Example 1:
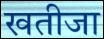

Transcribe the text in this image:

खतीजा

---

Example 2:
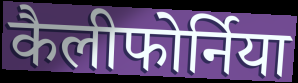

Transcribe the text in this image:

कैलीफोर्निया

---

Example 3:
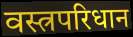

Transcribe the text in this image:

वस्त्रपरिधान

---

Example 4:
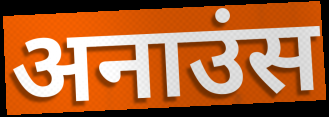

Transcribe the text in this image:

अनाउंस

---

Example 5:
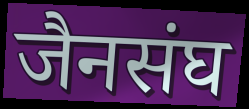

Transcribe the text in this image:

जैनसंघ